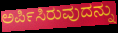
ಅರ್ಪಿಸಿರುವುದನ್ನು